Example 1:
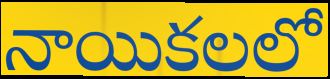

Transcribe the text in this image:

నాయికలలో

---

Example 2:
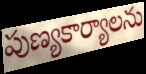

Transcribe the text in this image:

పుణ్యకార్యాలను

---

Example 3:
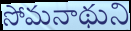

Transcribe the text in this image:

సోమనాథుని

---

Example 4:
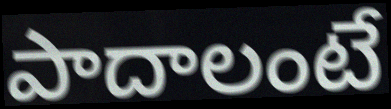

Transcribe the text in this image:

పాదాలంటే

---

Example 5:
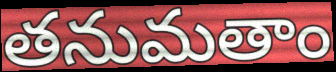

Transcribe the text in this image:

తనుమతాం